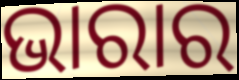
ଭାରାର